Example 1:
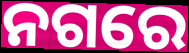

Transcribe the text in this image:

ନଗରେ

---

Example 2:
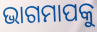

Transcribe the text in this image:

ଭାଗମାପକୁ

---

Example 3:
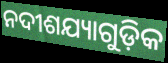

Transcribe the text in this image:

ନଦୀଶଯ୍ୟାଗୁଡ଼ିକ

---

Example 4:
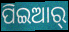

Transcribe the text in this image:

ପିଇଆର୍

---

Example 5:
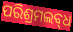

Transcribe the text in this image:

ପରିଶ୍ରମଲବ୍‍ଧ